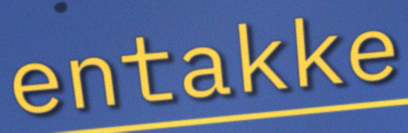
entakke